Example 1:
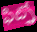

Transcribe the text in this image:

ఫిట్స్తో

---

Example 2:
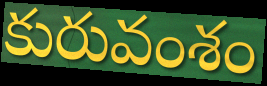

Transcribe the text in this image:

కురువంశం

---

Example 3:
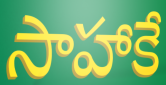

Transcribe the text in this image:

సాహాకే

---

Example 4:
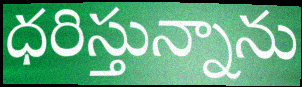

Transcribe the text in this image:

ధరిస్తున్నాను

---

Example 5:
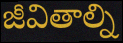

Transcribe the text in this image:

జీవితాల్ని